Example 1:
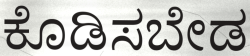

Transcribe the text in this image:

ಕೊಡಿಸಬೇಡ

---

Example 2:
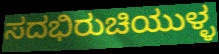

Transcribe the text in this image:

ಸದಭಿರುಚಿಯುಳ್ಳ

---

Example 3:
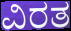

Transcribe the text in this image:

ವಿರತ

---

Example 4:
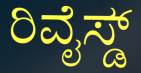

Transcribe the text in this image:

ರಿವೈಸ್ಡ್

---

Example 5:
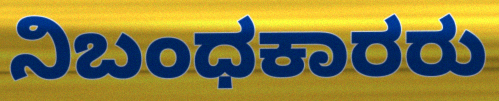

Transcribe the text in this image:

ನಿಬಂಧಕಾರರು